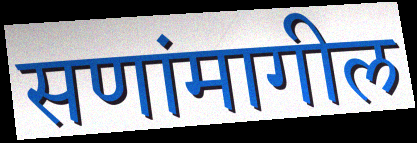
सणांमागील